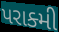
પરાક્મી